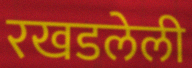
रखडलेली